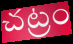
చట్రం